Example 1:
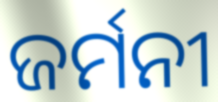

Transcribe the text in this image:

ଜର୍ମନୀ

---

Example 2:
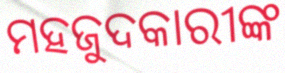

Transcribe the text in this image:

ମହଜୁଦକାରୀଙ୍କ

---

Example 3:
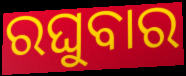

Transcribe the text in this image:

ରଘୁବାର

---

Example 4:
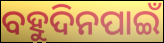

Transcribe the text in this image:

ବହୁଦିନପାଇଁ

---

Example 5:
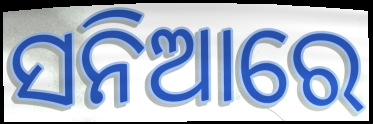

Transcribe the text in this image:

ସନିଆରେ